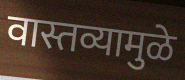
वास्तव्यामुळे